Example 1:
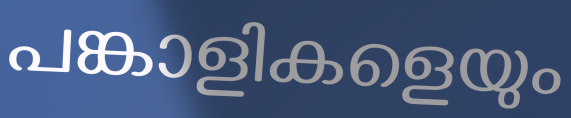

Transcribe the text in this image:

പങ്കാളികളെയും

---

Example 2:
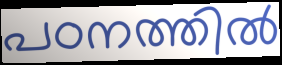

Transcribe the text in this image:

പഠനത്തിൽ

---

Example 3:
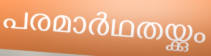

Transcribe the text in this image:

പരമാർഥതയ്ക്കും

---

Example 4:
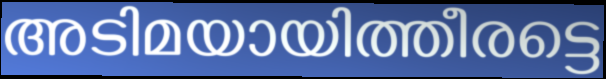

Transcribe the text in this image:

അടിമയായിത്തീരട്ടെ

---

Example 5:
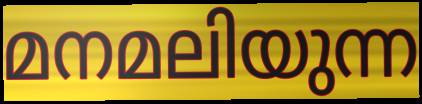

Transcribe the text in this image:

മനമലിയുന്ന